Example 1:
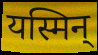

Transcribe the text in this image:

यस्मिन्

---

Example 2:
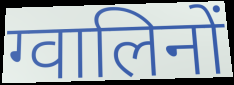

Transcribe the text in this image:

ग्वालिनों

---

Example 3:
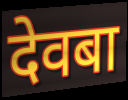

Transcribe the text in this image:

देवबा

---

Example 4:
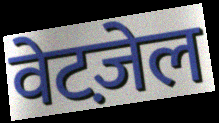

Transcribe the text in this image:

वेटज़ेल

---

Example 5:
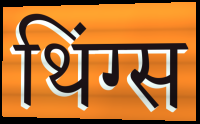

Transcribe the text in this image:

थिंग्स